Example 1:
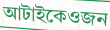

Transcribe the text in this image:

আটাইকেওজন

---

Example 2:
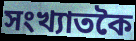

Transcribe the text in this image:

সংখ্যাতকৈ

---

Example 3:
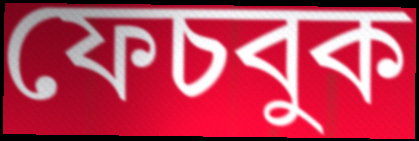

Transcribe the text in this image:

ফেচবুক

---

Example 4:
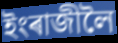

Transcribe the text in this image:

ইংৰাজীলৈ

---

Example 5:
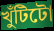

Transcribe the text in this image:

খুঁটিটো